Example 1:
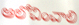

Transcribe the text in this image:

ఆలోచించాలి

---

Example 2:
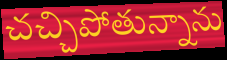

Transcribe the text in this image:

చచ్చిపోతున్నాను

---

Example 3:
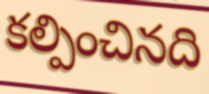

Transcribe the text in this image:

కల్పించినది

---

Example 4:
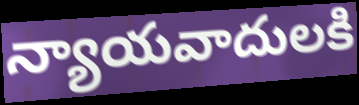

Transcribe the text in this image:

న్యాయవాదులకి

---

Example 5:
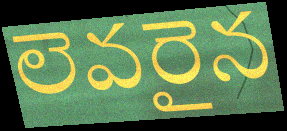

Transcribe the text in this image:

లెవరైన